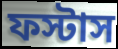
ফস্টাস